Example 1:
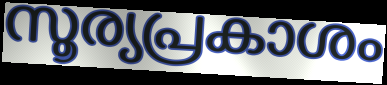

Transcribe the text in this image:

സൂര്യപ്രകാശം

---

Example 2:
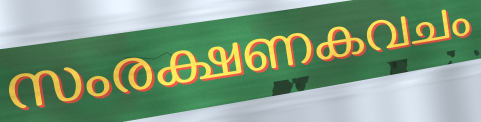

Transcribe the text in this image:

സംരക്ഷണകവചം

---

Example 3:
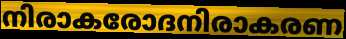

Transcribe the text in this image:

നിരാകരോദനിരാകരണ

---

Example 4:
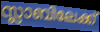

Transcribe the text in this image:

സ്ലാബിലേക്ക്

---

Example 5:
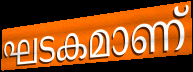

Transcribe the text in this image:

ഘടകമാണ്